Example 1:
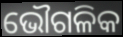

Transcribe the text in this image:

ଭୌଗଳିକ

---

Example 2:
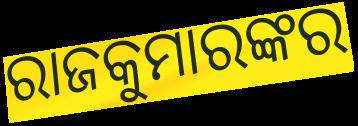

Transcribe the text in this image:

ରାଜକୁମାରଙ୍କର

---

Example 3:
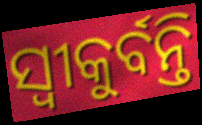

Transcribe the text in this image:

ସ୍ଵୀକୁର୍ବନ୍ତି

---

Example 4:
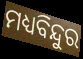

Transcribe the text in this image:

ମଧ୍ୟବିନ୍ଦୁର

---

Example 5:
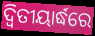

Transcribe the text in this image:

ଦ୍ୱିତୀୟାର୍ଦ୍ଧରେ